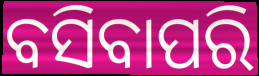
ବସିବାପରି